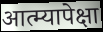
आत्म्यापेक्षा